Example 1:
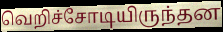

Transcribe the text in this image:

வெறிச்சோடியிருந்தன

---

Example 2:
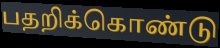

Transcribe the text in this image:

பதறிக்கொண்டு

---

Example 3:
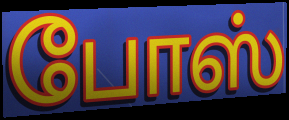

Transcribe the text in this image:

போஸ்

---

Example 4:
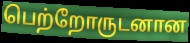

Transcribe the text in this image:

பெற்றோருடனான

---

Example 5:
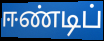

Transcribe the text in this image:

ஈண்டிப்